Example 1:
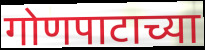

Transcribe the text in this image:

गोणपाटाच्या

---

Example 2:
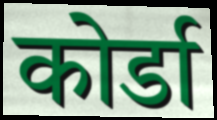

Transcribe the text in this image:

कोर्डा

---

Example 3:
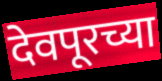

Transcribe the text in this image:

देवपूरच्या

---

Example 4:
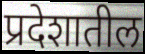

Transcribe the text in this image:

प्रदेशातील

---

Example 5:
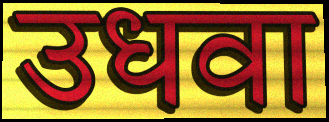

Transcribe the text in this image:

उधवा